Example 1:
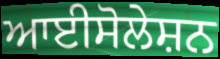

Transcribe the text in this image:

ਆਈਸੋਲੇਸ਼ਨ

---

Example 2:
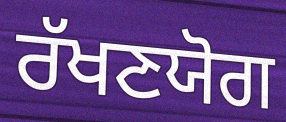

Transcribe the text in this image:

ਰੱਖਣਯੋਗ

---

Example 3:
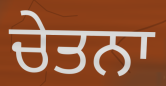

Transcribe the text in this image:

ਚੇਤਨਾ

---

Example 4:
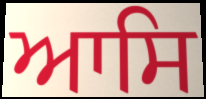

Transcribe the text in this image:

ਆਸਿ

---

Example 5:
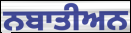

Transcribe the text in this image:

ਨਬਾਤੀਅਨ